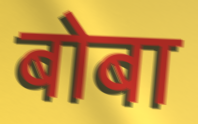
बोबा